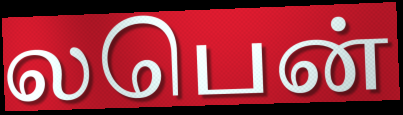
லபென்